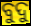
ବୁଦୁ